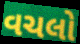
વચલો